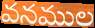
వనముల